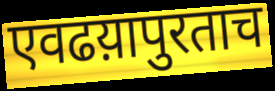
एवढय़ापुरताच